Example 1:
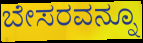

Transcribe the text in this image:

ಬೇಸರವನ್ನೂ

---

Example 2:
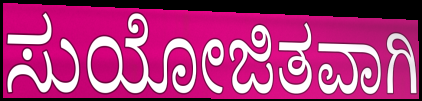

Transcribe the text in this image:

ಸುಯೋಜಿತವಾಗಿ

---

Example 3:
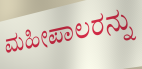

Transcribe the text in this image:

ಮಹೀಪಾಲರನ್ನು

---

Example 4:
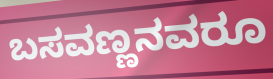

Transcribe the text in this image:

ಬಸವಣ್ಣನವರೂ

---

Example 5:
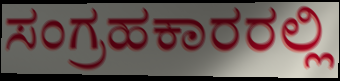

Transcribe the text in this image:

ಸಂಗ್ರಹಕಾರರಲ್ಲಿ